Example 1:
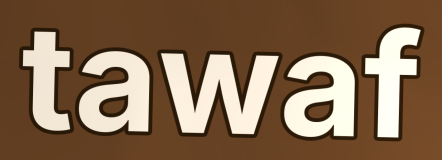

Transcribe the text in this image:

tawaf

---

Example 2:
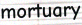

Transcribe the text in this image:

mortuary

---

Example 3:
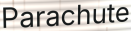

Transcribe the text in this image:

Parachute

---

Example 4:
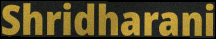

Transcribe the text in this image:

Shridharani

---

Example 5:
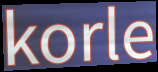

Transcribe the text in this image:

korle